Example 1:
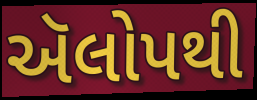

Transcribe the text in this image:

ઍલોપથી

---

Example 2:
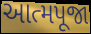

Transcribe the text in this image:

આત્મપૂજા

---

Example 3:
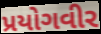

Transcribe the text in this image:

પ્રયોગવીર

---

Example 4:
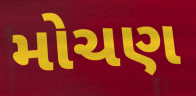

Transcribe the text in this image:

મોચણ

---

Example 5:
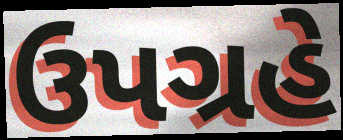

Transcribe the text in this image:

ઉપગ્રહે